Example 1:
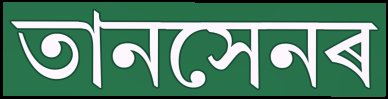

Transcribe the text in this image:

তানসেনৰ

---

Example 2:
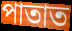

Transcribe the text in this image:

পাতাত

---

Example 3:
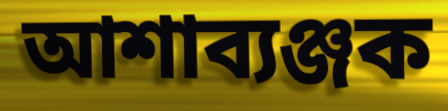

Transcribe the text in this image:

আশাব্যঞ্জক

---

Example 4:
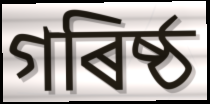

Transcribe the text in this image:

গৰিষ্ঠ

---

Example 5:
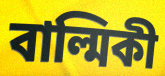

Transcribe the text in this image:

বাল্মিকী